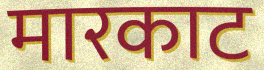
मारकाट